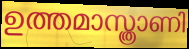
ഉത്തമാസ്ത്രാണി